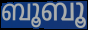
ബൂബൂ